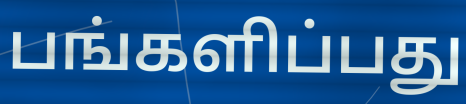
பங்களிப்பது